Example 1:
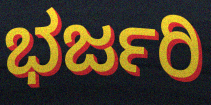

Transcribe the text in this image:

ಭರ್ಜರಿ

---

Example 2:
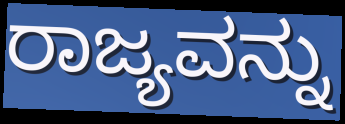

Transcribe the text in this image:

ರಾಜ್ಯವನ್ನು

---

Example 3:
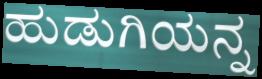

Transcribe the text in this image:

ಹುಡುಗಿಯನ್ನ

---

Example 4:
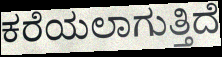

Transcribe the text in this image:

ಕರೆಯಲಾಗುತ್ತಿದೆ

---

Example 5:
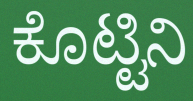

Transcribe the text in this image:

ಕೊಟ್ಟಿನಿ